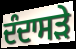
ਦੰਦਾਸੜੇ